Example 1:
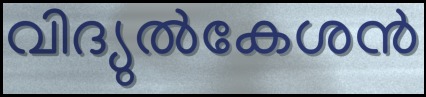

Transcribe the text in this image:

വിദ്യുൽകേശൻ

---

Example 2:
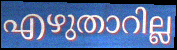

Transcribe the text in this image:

എഴുതാറില്ല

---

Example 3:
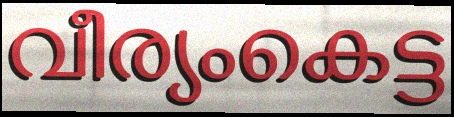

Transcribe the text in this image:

വീര്യംകെട്ട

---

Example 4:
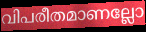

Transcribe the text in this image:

വിപരീതമാണല്ലോ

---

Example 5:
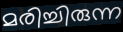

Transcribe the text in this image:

മരിച്ചിരുന്ന